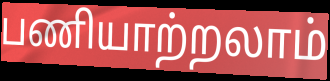
பணியாற்றலாம்